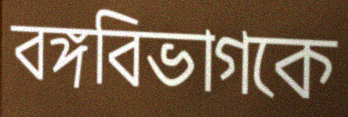
বঙ্গবিভাগকে